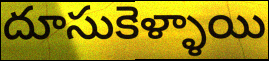
దూసుకెళ్ళాయి